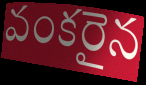
వంకరైన